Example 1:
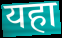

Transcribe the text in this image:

यहा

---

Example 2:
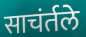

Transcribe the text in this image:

साचंर्तले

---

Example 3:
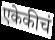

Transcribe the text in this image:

एकेकीचं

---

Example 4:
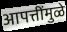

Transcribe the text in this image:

आपत्तींमुळे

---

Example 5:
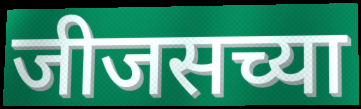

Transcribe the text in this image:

जीजसच्या